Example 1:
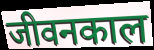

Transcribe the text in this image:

जीवनकाल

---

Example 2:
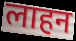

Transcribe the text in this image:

लाहन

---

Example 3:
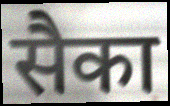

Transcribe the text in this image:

सैका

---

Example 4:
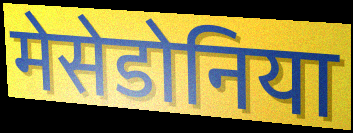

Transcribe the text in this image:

मेसेडोनिया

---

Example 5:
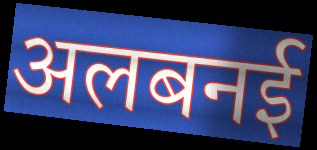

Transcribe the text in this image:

अलबनई